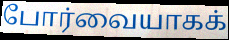
போர்வையாகக்